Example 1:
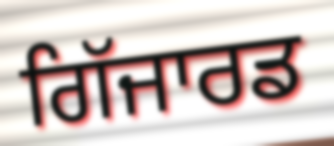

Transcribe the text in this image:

ਗਿੱਜਾਰਡ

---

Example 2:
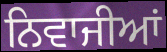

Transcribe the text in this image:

ਨਿਵਾਜੀਆਂ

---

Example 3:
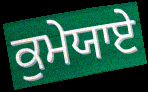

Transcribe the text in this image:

ਕੁਮੇਯਾਏ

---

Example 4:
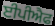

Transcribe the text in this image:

ਈਪੀਐਫ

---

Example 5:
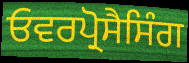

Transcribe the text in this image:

ਓਵਰਪ੍ਰੋਸੈਸਿੰਗ